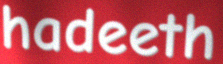
hadeeth